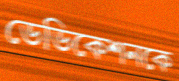
ডেডিকেশনকে